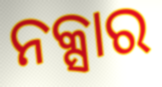
ନକ୍ସାର